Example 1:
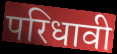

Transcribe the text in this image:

परिधावी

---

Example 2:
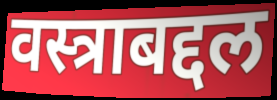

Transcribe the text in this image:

वस्त्राबद्दल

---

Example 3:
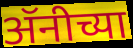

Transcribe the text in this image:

ॲनीच्या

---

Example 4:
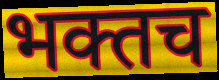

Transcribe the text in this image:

भक्तच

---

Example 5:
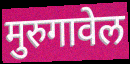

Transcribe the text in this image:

मुरुगावेल